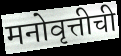
मनोवृत्तीची